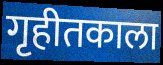
गृहीतकाला